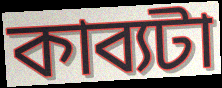
কাব্যটা